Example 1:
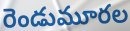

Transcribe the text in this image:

రెండుమూరల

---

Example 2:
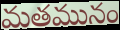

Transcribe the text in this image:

మతమునం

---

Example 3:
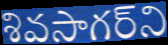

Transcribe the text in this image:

శివసాగర్‌ని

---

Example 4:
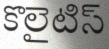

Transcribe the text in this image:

కొలైటిస్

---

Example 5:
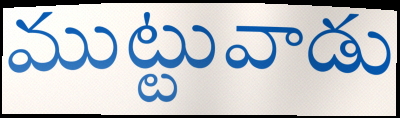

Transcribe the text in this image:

ముట్టువాడు